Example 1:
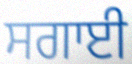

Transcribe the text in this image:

ਸਗਾਈ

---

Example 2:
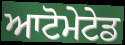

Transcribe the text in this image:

ਆਟੋਮੇਟੇਡ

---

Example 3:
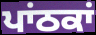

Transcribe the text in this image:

ਪਾਂਠਕਾਂ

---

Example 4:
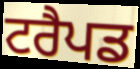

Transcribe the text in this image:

ਟਰੈਪਡ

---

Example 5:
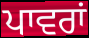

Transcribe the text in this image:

ਪਾਵਰਾਂ